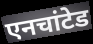
एनचांटेड